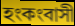
হংকংবাসী